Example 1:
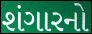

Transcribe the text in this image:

શંગારનો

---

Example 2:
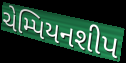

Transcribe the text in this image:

ચેમ્પિયનશીપ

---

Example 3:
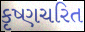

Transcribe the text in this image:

કૃષ્ણચરિત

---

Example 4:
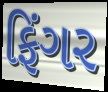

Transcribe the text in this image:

ફિંગર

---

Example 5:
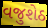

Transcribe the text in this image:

વજુશેઠ